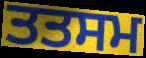
ਤਤਸਮ